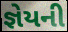
જ્ઞેયની